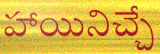
హాయినిచ్చే